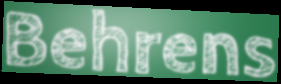
Behrens